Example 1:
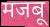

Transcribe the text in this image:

मजबू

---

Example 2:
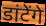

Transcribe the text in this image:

डांटेंगे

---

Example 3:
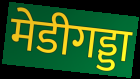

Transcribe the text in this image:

मेडीगड्डा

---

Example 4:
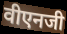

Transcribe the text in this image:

वीएनजी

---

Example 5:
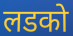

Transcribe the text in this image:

लडको